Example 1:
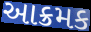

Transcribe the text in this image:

આક્રમક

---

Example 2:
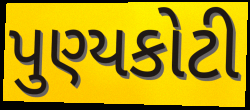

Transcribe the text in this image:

પુણ્યકોટી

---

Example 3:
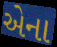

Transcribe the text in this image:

એના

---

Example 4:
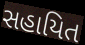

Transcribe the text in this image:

સહાયિત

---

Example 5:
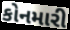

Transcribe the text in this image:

કોનમારી